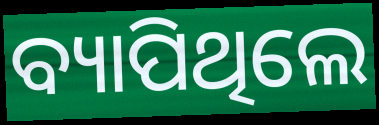
ବ୍ୟାପିଥିଲେ